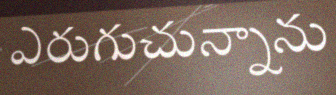
ఎరుగుచున్నాను